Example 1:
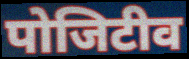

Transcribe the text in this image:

पोजिटीव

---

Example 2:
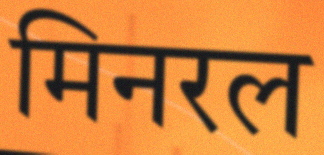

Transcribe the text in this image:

मिनरल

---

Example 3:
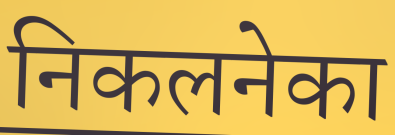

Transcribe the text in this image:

निकलनेका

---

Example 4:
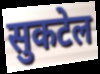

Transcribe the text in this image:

सुकटेल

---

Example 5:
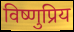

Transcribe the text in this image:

विष्णुप्रिय